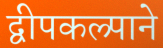
द्वीपकल्पाने